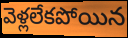
వెళ్లలేకపోయిన